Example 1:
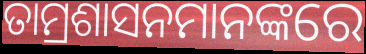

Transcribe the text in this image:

ତାମ୍ରଶାସନମାନଙ୍କରେ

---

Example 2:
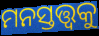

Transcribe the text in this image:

ମନସ୍ତତ୍ତ୍ୱକୁ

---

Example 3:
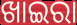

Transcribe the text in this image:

ଖାଇରା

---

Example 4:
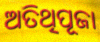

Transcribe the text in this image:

ଅତିଥିପୂଜା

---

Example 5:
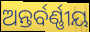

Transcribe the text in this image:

ଅନ୍ତର୍ବର୍ଣ୍ଣୀୟ